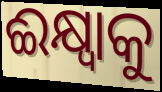
ଈକ୍ଷ୍ୱାକୁ